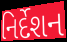
નિર્દેશન